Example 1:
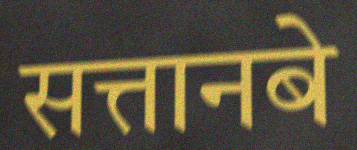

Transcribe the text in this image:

सत्तानबे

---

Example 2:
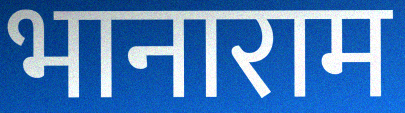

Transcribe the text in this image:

भानाराम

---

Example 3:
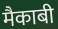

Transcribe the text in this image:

मैकाबी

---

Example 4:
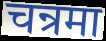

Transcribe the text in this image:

चन्रमा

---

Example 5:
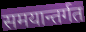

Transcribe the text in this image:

समयान्तर्गत